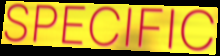
SPECIFIC